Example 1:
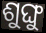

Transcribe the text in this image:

ଶୁଙ୍ଘୁ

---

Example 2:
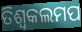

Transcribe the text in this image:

ତିଶ୍ୱକଲମପ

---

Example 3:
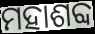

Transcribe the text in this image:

ମହାଶବ୍ଦ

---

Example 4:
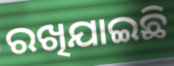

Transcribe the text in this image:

ରଖିଯାଇଛି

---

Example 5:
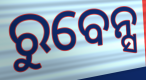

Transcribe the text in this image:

ରୁବେନ୍ସ